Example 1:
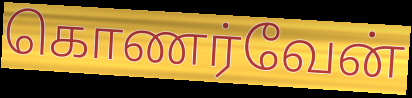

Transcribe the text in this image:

கொணர்வேன்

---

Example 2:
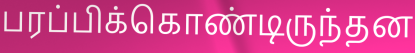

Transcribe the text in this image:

பரப்பிக்கொண்டிருந்தன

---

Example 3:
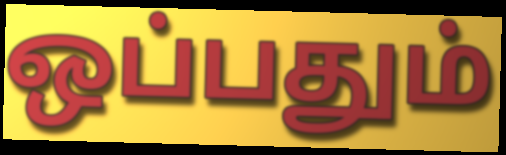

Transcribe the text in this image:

ஒப்பதும்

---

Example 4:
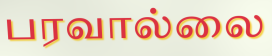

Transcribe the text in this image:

பரவால்லை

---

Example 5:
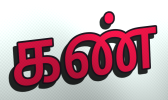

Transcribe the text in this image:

கண்